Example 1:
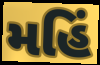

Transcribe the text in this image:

મહિં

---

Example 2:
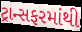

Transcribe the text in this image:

ટ્રાન્સફરમાંથી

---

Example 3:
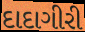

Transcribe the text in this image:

દાદાગીરી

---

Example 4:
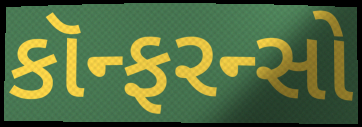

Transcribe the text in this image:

કૉન્ફરન્સો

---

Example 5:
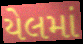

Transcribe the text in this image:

યેલમાં